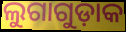
ଲୁଗାଗୁଡ଼ାକ